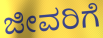
ಜೀವರಿಗೆ